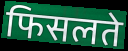
फिसलते